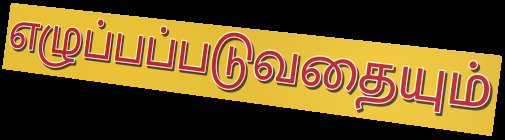
எழுப்பப்படுவதையும்